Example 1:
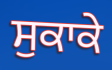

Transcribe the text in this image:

ਸੁਕਾਕੇ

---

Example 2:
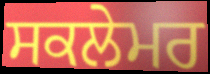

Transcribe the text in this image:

ਸਕਲੇਮਰ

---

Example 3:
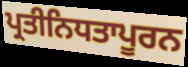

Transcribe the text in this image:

ਪ੍ਰਤੀਨਿਧਤਾਪੂਰਨ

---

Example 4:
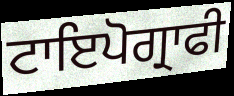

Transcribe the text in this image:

ਟਾਇਪੋਗ੍ਰਾਫੀ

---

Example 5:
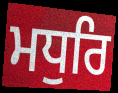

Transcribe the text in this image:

ਮਧੁਰਿ